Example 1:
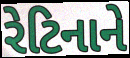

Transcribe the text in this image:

રેટિનાને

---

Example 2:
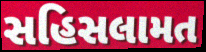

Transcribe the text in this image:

સહિસલામત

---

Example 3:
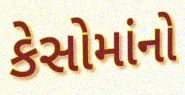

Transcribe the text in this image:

કેસોમાંનો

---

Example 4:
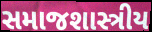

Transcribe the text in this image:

સમાજશાસ્ત્રીય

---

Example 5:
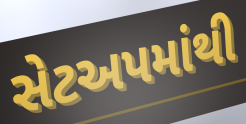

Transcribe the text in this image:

સેટઅપમાંથી